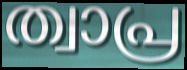
ത്വാപ്ര